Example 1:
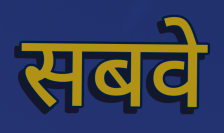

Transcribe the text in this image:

सबवे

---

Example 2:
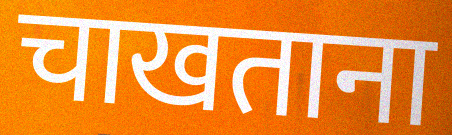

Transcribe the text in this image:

चाखताना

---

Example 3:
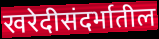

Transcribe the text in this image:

खरेदीसंदर्भातील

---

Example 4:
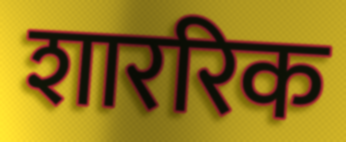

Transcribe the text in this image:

शाररिक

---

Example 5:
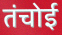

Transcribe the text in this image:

तंचोई